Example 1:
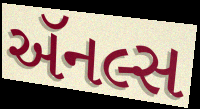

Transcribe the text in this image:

ઍનલ્સ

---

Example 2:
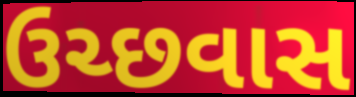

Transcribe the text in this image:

ઉચ્છવાસ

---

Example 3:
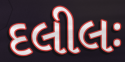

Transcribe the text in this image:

દલીલઃ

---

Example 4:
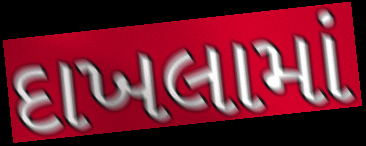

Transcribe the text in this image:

દાખલામાં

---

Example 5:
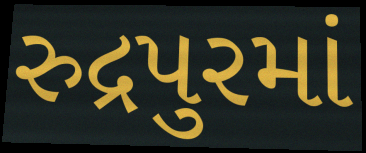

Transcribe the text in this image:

રુદ્રપુરમાં